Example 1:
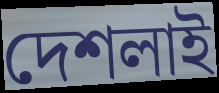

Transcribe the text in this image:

দেশলাই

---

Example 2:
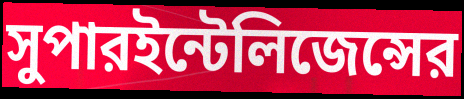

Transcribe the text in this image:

সুপারইন্টেলিজেন্সের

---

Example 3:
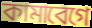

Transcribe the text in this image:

কামাবেগে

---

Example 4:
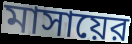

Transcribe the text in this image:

মাসায়ের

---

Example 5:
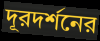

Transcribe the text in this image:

দূরদর্শনের